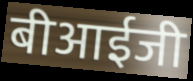
बीआईजी